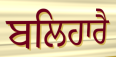
ਬਲਿਹਾਰੈ